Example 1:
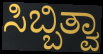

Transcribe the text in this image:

ಸಿಬ್ಬಿತ್ವಾ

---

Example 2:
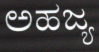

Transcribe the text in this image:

ಅಹಜ್ಯ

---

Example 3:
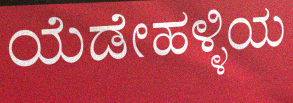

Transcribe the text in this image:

ಯೆಡೇಹಳ್ಳಿಯ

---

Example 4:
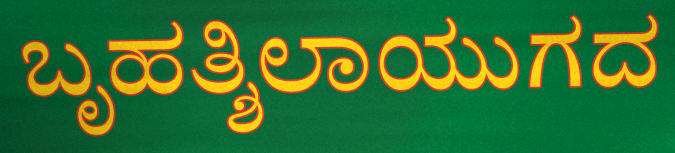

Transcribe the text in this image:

ಬೃಹತ್ಶಿಲಾಯುಗದ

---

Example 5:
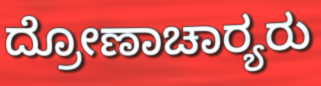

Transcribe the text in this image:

ದ್ರೋಣಾಚಾರ‍್ಯರು